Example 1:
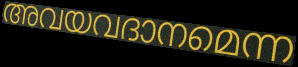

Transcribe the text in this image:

അവയവദാനമെന്ന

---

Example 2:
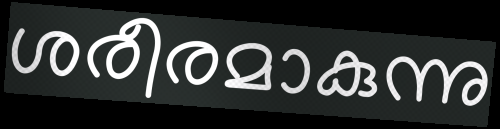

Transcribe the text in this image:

ശരീരമാകുന്നു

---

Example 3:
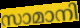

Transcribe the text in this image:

സാമാനി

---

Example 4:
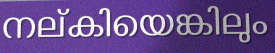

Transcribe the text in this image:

നല്‌കിയെങ്കിലും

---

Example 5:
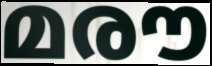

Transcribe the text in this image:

മരൗ